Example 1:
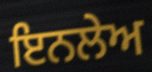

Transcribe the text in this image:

ਇਨਲੇਅ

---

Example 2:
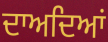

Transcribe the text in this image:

ਦਾਅਦਿਆਂ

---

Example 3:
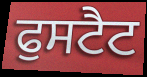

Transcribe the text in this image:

ਫੁਸਟੈਟ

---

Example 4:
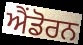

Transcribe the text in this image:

ਐਂਡੋਰਨ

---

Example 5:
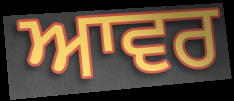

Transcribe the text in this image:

ਆਵਰ